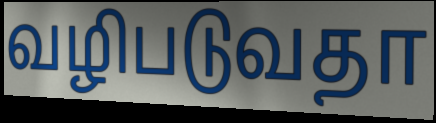
வழிபடுவதா